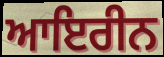
ਆਇਰੀਨ